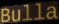
Bulla